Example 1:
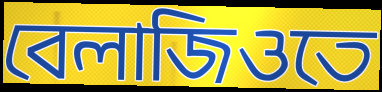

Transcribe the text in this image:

বেলাজিওতে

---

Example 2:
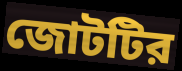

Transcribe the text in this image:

জোটটির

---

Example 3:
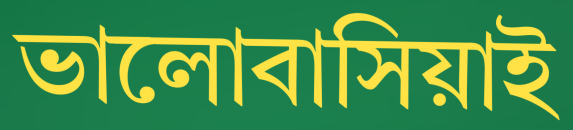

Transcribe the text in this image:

ভালোবাসিয়াই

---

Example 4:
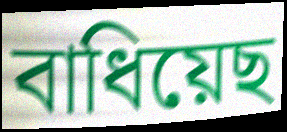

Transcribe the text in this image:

বাধিয়েছ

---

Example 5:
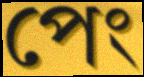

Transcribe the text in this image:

পেং